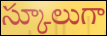
స్కూలుగా